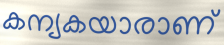
കന്യകയാരാണ്